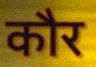
कौर